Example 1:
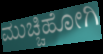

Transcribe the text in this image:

ಮುಚ್ಚಿಹೋಗಿ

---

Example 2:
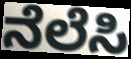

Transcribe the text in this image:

ನೆಲೆಸಿ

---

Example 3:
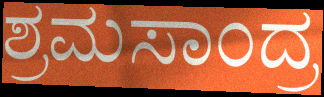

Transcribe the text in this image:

ಶ್ರಮಸಾಂದ್ರ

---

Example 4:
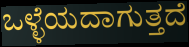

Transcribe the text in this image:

ಒಳ್ಳೆಯದಾಗುತ್ತದೆ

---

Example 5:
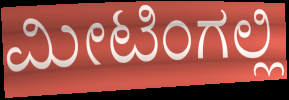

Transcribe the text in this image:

ಮೀಟಿಂಗಲ್ಲಿ